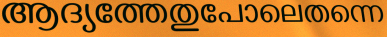
ആദ്യത്തേതുപോലെതന്നെ